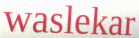
waslekar